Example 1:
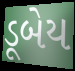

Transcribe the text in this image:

ડૂબેય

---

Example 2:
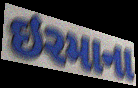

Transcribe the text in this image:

ઇરમાના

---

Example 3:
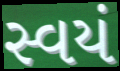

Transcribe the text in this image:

સ્વયં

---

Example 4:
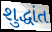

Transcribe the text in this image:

શુદ્ધાંત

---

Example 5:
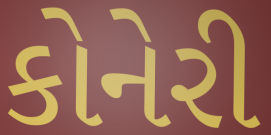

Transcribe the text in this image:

કોનેરી